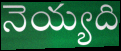
నెయ్యది